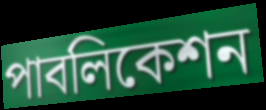
পাবলিকেশন